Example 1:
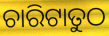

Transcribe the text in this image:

ଚାରିଟାତୁଠ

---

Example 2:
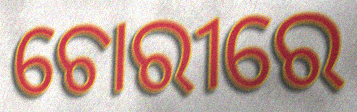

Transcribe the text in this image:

ଚୋରୀରେ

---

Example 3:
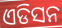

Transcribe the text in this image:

ଏଡିସନ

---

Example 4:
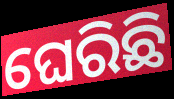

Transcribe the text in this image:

ଘେରିଛି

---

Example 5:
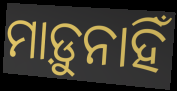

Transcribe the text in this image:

ମାଡ଼ୁନାହିଁ